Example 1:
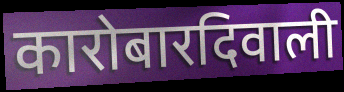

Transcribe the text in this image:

कारोबारदिवाली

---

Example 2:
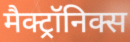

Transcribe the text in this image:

मैक्ट्रॉनिक्स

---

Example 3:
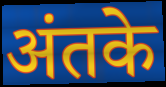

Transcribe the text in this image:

अंतके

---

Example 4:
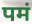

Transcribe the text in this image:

पमं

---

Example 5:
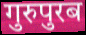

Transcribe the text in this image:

गुरुपुरब